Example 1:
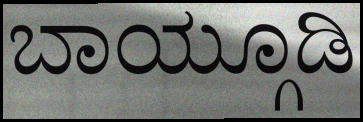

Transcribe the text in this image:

ಬಾಯ್ಗೂಡಿ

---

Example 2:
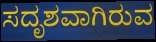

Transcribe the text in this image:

ಸದೃಶವಾಗಿರುವ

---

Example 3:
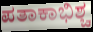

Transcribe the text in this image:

ಪತಾಕಾಭಿಶ್ಚ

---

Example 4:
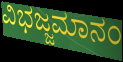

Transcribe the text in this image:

ವಿಭಜ್ಜಮಾನಂ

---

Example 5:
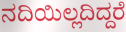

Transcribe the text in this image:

ನದಿಯಿಲ್ಲದಿದ್ದರೆ